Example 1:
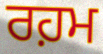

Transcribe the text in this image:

ਰਹ਼ਮ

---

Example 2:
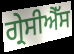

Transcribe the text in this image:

ਗ੍ਰੇਸੀਐੱਸ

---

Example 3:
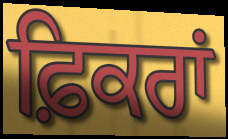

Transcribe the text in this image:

ਫ਼ਿਕਰਾਂ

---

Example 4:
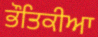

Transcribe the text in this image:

ਭੌਤਿਕੀਆ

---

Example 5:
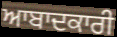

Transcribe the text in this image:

ਆਬਾਦਕਾਰੀ